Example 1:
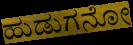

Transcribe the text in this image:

ಹುಡುಗನೋ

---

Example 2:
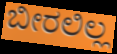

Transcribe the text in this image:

ಬೀರಲಿಲ್ಲ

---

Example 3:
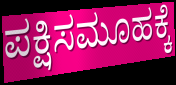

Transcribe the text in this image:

ಪಕ್ಷಿಸಮೂಹಕ್ಕೆ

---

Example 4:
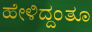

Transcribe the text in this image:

ಹೇಳಿದ್ದಂತೂ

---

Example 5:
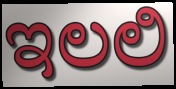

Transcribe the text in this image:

ಇಲಲಿ